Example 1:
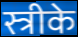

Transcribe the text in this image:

स्त्रीके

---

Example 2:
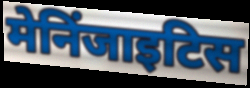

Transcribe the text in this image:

मेनिंजाइटिस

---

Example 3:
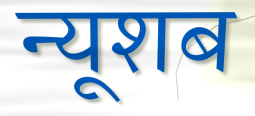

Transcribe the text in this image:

न्यूशब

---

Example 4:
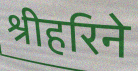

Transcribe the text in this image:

श्रीहरिने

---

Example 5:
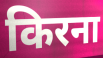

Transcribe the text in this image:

किरना